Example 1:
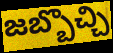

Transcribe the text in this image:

జబ్బొచ్చి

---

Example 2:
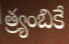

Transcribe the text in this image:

త్ర్యంబికే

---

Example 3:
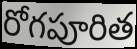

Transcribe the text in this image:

రోగపూరిత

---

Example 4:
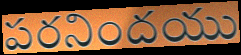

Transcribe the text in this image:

పరనిందయు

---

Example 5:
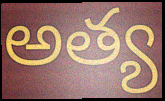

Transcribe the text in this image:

అత్య